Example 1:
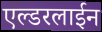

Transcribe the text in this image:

एल्डरलाईन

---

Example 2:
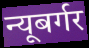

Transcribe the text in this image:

न्यूबर्गर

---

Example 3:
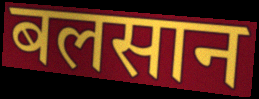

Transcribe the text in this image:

बलसान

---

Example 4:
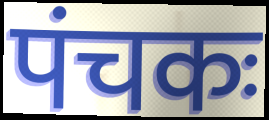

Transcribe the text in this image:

पंचकः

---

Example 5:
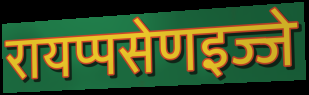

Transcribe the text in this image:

रायप्पसेणइज्जे